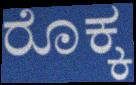
ರೊಕ್ಕ